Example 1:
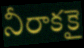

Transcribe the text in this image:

నీరాకకై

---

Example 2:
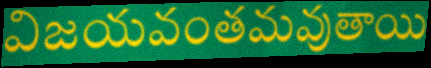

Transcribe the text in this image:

విజయవంతమవుతాయి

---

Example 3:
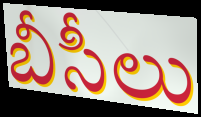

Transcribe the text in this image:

బీసీలు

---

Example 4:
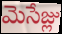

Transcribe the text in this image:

మెసేజ్లు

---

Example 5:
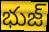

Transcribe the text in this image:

భుజ్